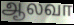
ஆலவா